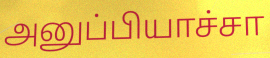
அனுப்பியாச்சா